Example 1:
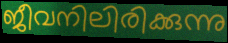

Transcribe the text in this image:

ജീവനിലിരിക്കുന്നു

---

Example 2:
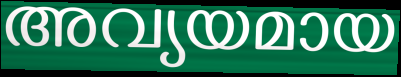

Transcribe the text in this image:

അവ്യയമായ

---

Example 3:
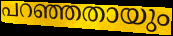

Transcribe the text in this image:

പറഞ്ഞതായും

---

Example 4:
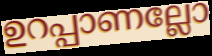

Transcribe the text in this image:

ഉറപ്പാണല്ലോ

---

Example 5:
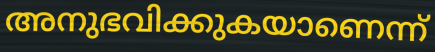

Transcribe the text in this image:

അനുഭവിക്കുകയാണെന്ന്